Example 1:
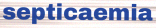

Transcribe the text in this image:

septicaemia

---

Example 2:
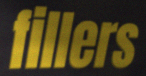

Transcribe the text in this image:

fillers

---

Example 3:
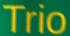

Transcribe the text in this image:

Trio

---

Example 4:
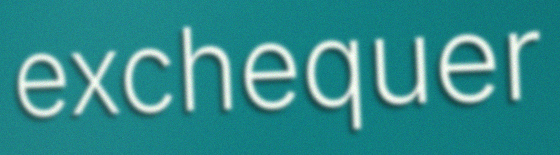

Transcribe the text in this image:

exchequer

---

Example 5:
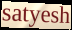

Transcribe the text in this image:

satyesh